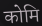
कोमि